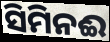
ସିମିନଈ